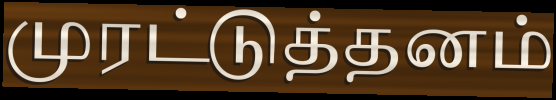
முரட்டுத்தனம்